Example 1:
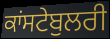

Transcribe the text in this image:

ਕਾਂਸਟੇਬੁਲਰੀ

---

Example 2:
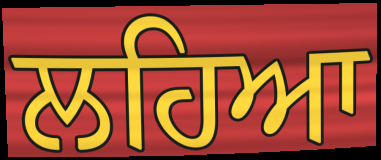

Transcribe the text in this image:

ਲਹਿਆ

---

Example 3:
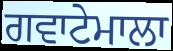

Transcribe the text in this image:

ਗਵਾਟੇਮਾਲਾ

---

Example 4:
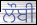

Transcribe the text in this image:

ਲੌਬੀ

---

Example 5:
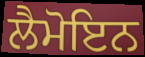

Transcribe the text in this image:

ਲੈਮੋਇਨ